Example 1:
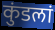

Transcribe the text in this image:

कुंडलां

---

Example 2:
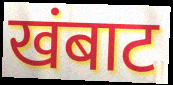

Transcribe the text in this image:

खंबाट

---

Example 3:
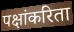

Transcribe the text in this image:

पक्षांकरिता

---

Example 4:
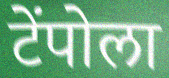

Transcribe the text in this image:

टेंपोला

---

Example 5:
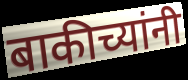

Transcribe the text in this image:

बाकीच्यांनी